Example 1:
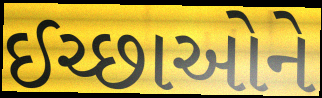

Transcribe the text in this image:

ઈચ્છાઓને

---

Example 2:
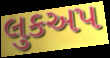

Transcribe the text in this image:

લુકઅપ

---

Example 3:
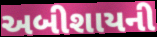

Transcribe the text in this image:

અબીશાયની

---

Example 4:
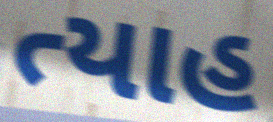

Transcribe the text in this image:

ત્યાહ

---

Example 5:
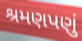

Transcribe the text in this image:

શ્રમણપણું